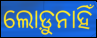
ଲୋଡ଼ୁନାହିଁ